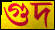
গুদ